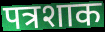
पत्रशाक